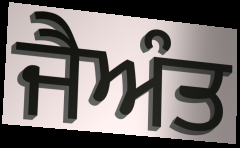
ਜੈਅੰਤ